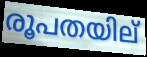
രൂപതയില്